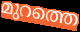
മുറത്തെ